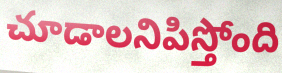
చూడాలనిపిస్తోంది